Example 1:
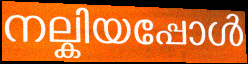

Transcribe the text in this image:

നല്കിയപ്പോൾ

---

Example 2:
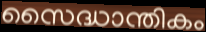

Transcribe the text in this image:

സൈദ്ധാന്തികം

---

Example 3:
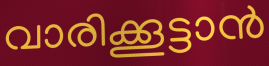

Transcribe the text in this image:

വാരിക്കൂട്ടാൻ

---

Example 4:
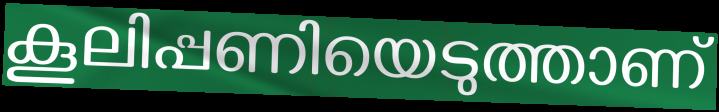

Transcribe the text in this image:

കൂലിപ്പണിയെടുത്താണ്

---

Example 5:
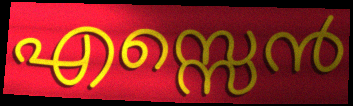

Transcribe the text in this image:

എസ്സെൻ